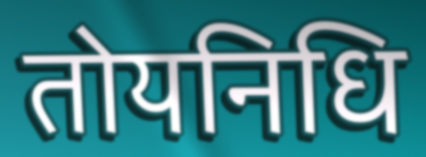
तोयनिधि